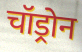
चॉड्रोन